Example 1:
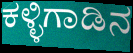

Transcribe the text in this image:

ಕಳ್ಳಿಗಾಡಿನ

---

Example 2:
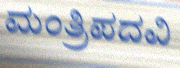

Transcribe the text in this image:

ಮಂತ್ರಿಪದವಿ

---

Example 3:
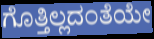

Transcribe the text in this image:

ಗೊತ್ತಿಲ್ಲದಂತೆಯೇ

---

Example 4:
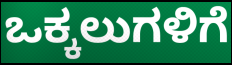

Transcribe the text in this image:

ಒಕ್ಕಲುಗಳಿಗೆ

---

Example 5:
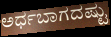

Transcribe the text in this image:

ಅರ್ಧಬಾಗದಷ್ಟು